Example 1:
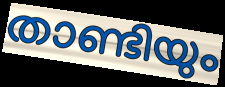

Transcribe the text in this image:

താണ്ടിയും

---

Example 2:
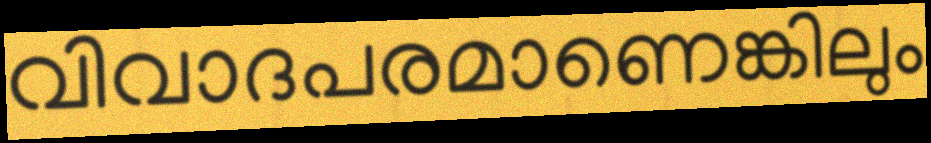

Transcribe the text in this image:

വിവാദപരമാണെങ്കിലും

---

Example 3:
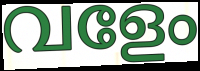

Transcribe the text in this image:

വളേം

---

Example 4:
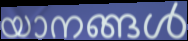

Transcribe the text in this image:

യാനങ്ങൾ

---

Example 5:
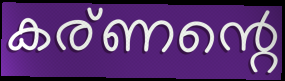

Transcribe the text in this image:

കര്ണന്റെ